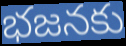
భజనకు